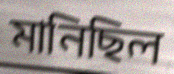
মানিছিল